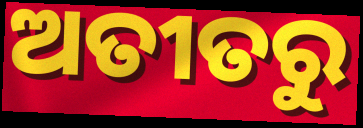
ଅତୀତରୁ